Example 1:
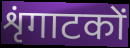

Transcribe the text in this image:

शृंगाटकों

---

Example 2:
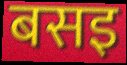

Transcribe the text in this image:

बसइ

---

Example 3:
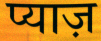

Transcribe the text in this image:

प्याज़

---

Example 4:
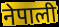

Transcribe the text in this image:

नेपाली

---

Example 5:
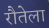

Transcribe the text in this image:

रौतेला